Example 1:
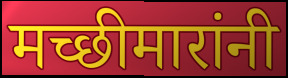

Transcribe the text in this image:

मच्छीमारांनी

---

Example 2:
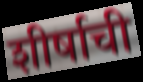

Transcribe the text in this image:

शीर्षाची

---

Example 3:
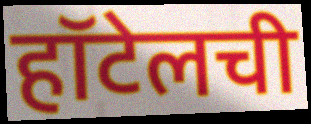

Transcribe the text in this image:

हॉटेलची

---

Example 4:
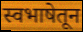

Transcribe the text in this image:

स्वभाषेतून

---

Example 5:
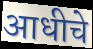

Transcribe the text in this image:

आधीचे